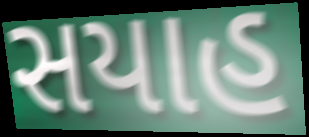
સયાહ